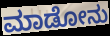
ಮಾಡೋನು